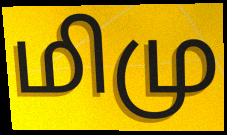
மிமு